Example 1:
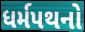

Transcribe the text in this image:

ધર્મપથનો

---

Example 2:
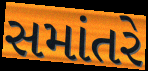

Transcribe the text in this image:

સમાંતરે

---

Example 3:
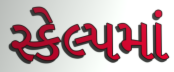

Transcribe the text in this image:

સ્કેલ્પમાં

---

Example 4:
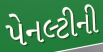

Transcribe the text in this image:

પેનલ્ટીની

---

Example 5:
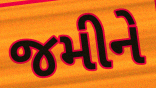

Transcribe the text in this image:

જમીને